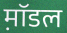
म़ॉडल